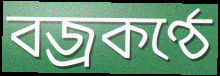
বজ্রকণ্ঠে